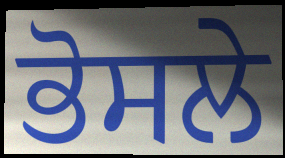
ਭੋਸਲੇ